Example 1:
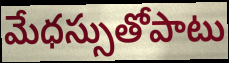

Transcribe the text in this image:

మేధస్సుతోపాటు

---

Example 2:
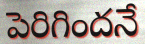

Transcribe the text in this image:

పెరిగిందనే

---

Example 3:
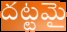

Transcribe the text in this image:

దట్టమై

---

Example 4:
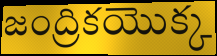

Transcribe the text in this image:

జంద్రికయొక్క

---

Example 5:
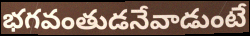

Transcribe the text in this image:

భగవంతుడనేవాడుంటే